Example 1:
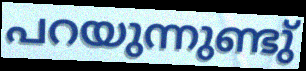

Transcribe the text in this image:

പറയുന്നുണ്ടു്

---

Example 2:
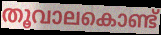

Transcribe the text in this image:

തൂവാലകൊണ്ട്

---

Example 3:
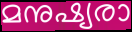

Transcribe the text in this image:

മനുഷ്യരാ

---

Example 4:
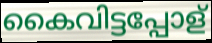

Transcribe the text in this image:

കൈവിട്ടപ്പോള്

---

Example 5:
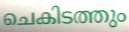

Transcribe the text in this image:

ചെകിടത്തും